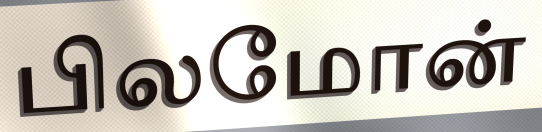
பிலமோன்